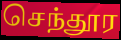
செந்தூர